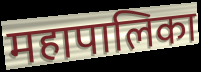
महापालिका